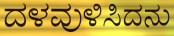
ದಳವುಳಿಸಿದನು